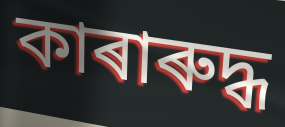
কাৰাৰুদ্ধ